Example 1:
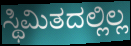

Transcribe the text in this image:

ಸ್ಥಿಮಿತದಲ್ಲಿಲ್ಲ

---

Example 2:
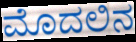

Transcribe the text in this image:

ಮೊದಲಿನ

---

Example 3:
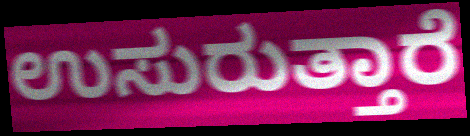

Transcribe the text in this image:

ಉಸುರುತ್ತಾರೆ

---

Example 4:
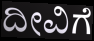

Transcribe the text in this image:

ದೀವಿಗೆ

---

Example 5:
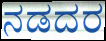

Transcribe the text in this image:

ನಡದರ